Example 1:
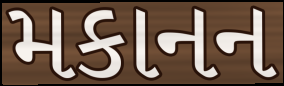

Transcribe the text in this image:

મકાનન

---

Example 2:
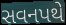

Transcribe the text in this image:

સવનપથે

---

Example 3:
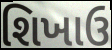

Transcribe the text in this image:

શિખાઉ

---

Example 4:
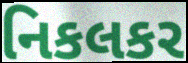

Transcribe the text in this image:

નિકલકર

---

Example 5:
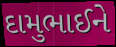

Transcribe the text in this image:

દામુભાઈને